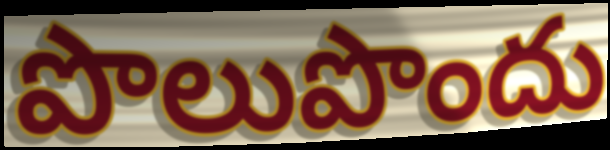
పొలుపొందు